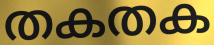
തകതക